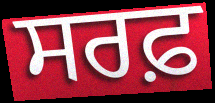
ਸਰਫ਼